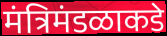
मंत्रिमंडळाकडे